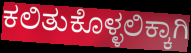
ಕಲಿತುಕೊಳ್ಳಲಿಕ್ಕಾಗಿ